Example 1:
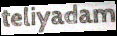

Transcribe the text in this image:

teliyadam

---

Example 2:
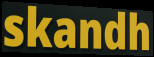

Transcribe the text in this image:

skandh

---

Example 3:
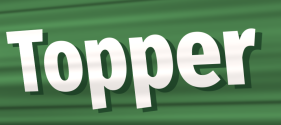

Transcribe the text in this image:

Topper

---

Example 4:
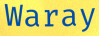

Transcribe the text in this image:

Waray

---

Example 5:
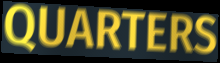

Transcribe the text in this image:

QUARTERS